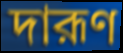
দারূণ